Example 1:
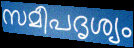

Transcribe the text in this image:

സമീപദൃശ്യം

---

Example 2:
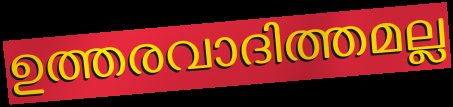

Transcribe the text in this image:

ഉത്തരവാദിത്തമല്ല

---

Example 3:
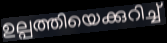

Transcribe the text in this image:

ഉല്പത്തിയെക്കുറിച്ച്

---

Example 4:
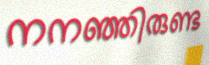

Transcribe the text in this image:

നനഞ്ഞിരുണ്ട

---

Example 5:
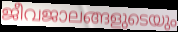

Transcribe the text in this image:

ജീവജാലങ്ങളുടെയും